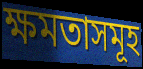
ক্ষমতাসমূহ